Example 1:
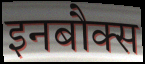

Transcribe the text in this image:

इनबौक्स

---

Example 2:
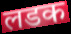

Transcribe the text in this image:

लडक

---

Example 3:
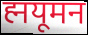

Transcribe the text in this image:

ह्मयूमन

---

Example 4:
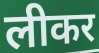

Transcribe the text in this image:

लीकर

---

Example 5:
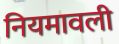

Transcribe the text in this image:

नियमावली